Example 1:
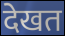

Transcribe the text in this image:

देखत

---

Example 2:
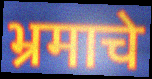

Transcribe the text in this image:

भ्रमाचे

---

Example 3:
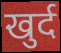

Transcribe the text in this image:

खुर्द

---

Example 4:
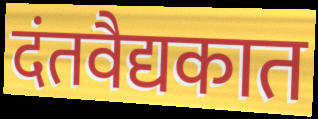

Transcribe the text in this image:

दंतवैद्यकात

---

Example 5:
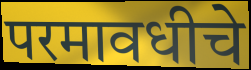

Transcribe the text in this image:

परमावधीचे